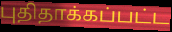
புதிதாக்கப்பட்ட